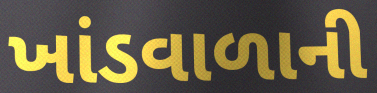
ખાંડવાળાની